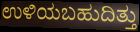
ಉಳಿಯಬಹುದಿತ್ತು